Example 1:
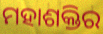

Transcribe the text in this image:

ମହାଶକ୍ତିର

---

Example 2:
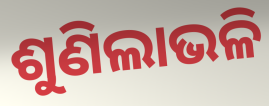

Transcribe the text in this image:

ଶୁଣିଲାଭଳି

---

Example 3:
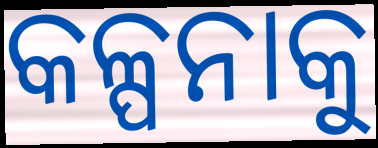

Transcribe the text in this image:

କଳ୍ପନାକୁ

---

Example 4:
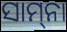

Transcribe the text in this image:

ସାମ୍‍ନା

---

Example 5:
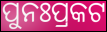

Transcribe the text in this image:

ପୁନଃପ୍ରକଟ